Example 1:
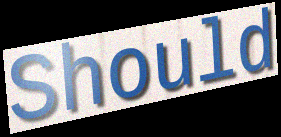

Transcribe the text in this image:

Should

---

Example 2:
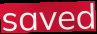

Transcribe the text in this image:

saved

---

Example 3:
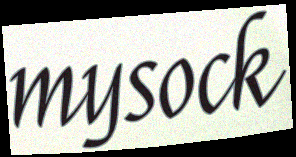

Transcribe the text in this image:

mysock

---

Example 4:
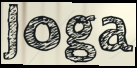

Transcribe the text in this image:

Joga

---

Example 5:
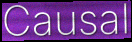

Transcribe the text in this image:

Causal